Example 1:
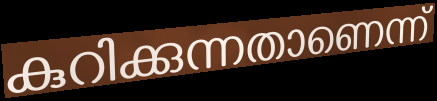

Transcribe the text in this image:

കുറിക്കുന്നതാണെന്ന്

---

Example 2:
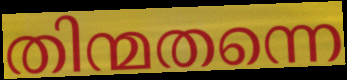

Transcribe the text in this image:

തിന്മതന്നെ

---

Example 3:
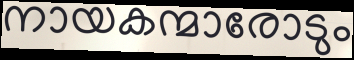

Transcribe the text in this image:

നായകന്മാരോടും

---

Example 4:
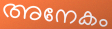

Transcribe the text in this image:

അനേകം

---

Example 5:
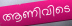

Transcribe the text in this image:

ആണിവിടെ